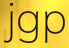
jgp